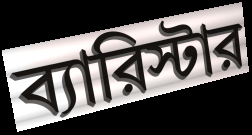
ব্যারিস্টার